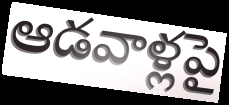
ఆడవాళ్లపై